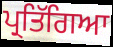
ਪ੍ਰਤਿੱਗਿਆ